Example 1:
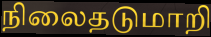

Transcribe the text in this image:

நிலைதடுமாறி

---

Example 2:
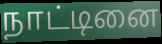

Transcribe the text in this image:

நாட்டினை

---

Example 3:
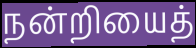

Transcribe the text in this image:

நன்றியைத்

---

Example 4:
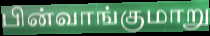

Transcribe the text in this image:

பின்வாங்குமாறு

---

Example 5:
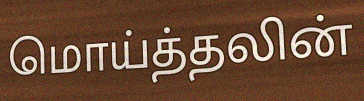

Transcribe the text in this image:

மொய்த்தலின்